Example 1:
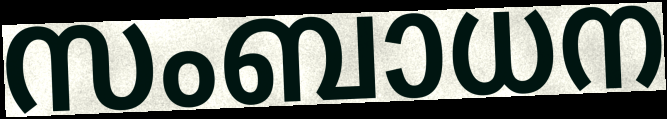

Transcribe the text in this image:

സംബാധന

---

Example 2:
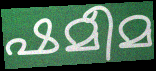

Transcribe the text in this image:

ഷമീമ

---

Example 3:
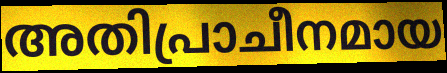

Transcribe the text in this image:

അതിപ്രാചീനമായ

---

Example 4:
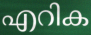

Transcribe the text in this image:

എറിക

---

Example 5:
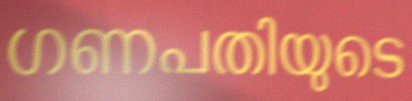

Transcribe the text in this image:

ഗണപതിയുടെ